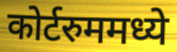
कोर्टरुममध्ये